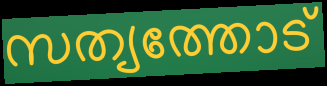
സത്യത്തോട്